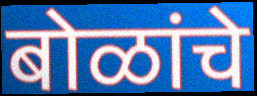
बोळांचे